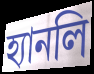
হ্যানলি